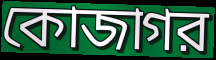
কোজাগর